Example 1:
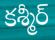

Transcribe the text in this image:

కశ్మీర్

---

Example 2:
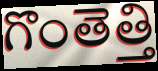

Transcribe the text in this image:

గొంతెత్తి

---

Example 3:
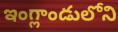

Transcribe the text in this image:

ఇంగ్లాండులోని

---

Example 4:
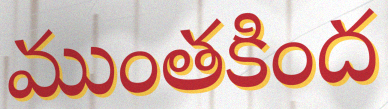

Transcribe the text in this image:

ముంతకింద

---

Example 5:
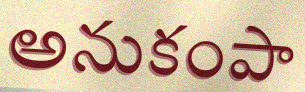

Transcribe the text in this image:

అనుకంపా